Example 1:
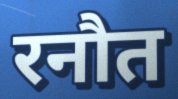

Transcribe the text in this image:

रनौत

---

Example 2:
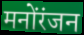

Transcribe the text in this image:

मनोंरंजन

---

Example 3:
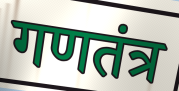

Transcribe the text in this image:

गणतंत्र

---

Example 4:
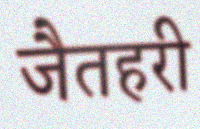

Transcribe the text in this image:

जैतहरी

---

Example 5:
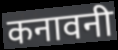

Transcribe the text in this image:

कनावनी